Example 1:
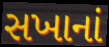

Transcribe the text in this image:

સખાનાં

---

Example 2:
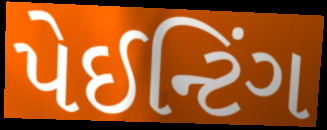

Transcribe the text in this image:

પેઈન્ટિંગ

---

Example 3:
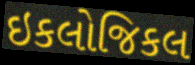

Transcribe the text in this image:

ઇકલોજિકલ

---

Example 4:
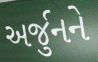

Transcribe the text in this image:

અર્જુનને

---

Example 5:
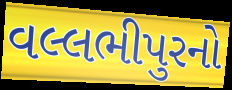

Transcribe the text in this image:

વલ્લભીપુરનો